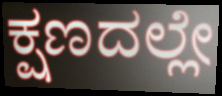
ಕ್ಷಣದಲ್ಲೇ